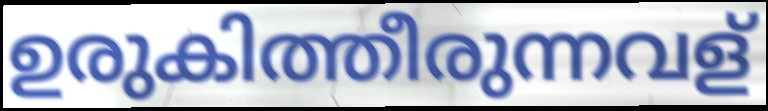
ഉരുകിത്തീരുന്നവള്